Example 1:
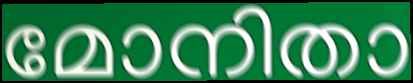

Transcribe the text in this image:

മോനിതാ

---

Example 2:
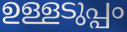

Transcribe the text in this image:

ഉള്ളടുപ്പം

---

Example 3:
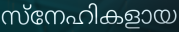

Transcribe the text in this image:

സ്നേഹികളായ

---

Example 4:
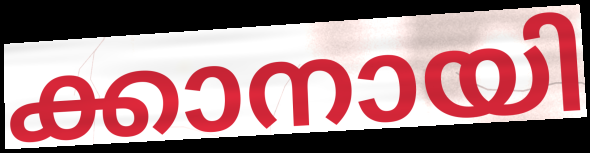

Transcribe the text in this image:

ക്കാനായി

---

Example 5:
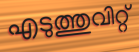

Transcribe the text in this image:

എടുത്തുവിറ്റ്